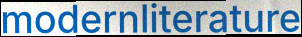
modernliterature